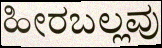
ಹೀರಬಲ್ಲವು